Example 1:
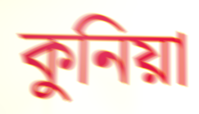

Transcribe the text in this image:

কুনিয়া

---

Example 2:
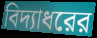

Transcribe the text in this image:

বিদ্যাধরের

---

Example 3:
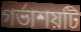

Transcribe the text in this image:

গর্ভাশয়টি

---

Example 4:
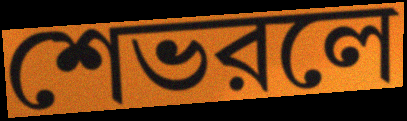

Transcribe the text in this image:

শেভরলে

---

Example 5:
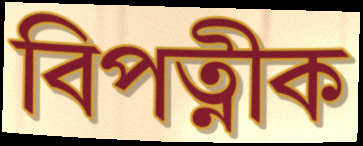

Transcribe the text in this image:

বিপত্নীক